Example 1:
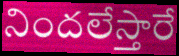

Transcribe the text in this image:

నిందలేస్తారే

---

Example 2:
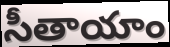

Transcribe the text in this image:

సీతాయాం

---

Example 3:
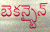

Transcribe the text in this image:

బెకన్స్టైన్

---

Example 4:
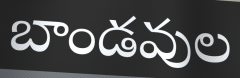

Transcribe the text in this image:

బాండవుల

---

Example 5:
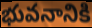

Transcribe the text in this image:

భువనానికి